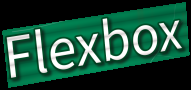
Flexbox